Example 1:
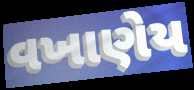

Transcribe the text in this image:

વખાણેય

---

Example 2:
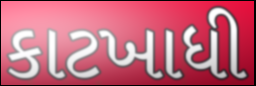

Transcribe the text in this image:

કાટખાધી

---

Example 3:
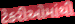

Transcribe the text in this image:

ટેકરીઓમાંથી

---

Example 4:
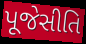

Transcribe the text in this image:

પૂજેસીતિ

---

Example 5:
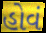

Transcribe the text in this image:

હોવં